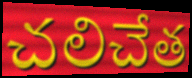
చలిచేత